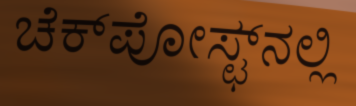
ಚೆಕ್‌ಪೋಸ್ಟ್‌ನಲ್ಲಿ